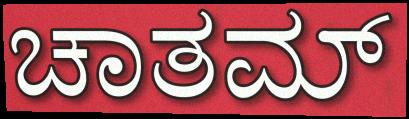
ಚಾತಮ್